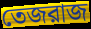
তেজরাজ